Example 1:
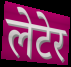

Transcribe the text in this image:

लेटेर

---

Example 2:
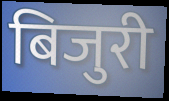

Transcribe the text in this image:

बिजुरी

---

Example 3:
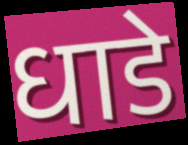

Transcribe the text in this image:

धाडे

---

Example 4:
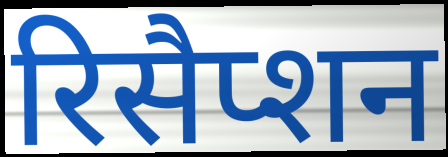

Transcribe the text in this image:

रिसैप्शन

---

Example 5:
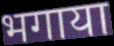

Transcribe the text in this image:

भगाया